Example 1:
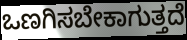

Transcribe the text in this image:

ಒಣಗಿಸಬೇಕಾಗುತ್ತದೆ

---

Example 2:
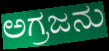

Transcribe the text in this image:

ಅಗ್ರಜನು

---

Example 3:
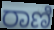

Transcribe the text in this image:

ರಾಣಿ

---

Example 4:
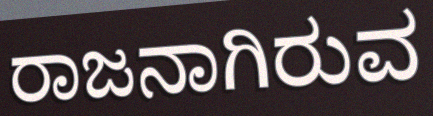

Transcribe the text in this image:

ರಾಜನಾಗಿರುವ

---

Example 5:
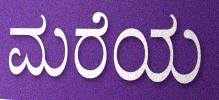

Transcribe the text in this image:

ಮರೆಯ